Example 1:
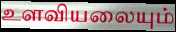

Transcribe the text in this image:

உளவியலையும்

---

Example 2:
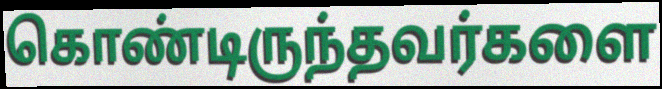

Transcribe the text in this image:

கொண்டிருந்தவர்களை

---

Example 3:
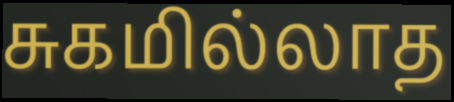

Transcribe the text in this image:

சுகமில்லாத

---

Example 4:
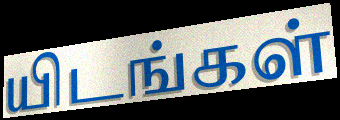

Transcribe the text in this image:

யிடங்கள்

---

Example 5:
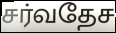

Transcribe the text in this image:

சர்வதேச